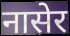
नासेर